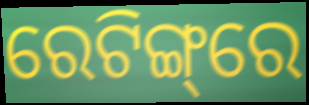
ରେଟିଙ୍ଗ୍‌ରେ